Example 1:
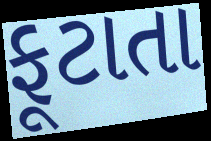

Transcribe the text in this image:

ફૂટાતા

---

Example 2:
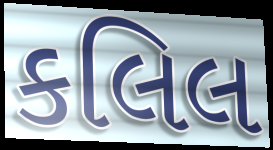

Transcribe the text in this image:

કલિલ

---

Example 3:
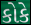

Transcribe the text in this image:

કોકે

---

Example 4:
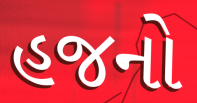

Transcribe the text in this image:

હજનો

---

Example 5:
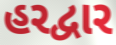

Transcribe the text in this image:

હરદ્વાર